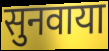
सुनवाया